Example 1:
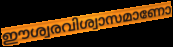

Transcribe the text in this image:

ഈശ്വരവിശ്വാസമാണോ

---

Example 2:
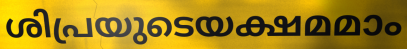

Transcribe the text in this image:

ശിപ്രയുടെയക്ഷമമാം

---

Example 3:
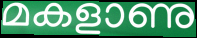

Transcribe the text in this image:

മകളാണു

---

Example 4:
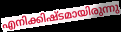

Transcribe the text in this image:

എനിക്കിഷ്ടമായിരുന്നു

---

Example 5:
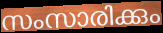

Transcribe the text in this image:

സംസാരിക്കും